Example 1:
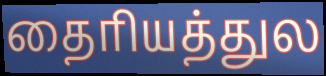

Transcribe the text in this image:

தைரியத்துல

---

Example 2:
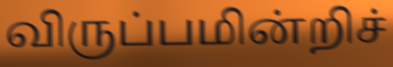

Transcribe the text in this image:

விருப்பமின்றிச்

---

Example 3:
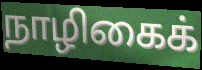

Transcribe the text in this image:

நாழிகைக்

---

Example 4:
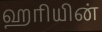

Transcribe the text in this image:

ஹரியின்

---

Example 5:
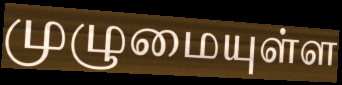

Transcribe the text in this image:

முழுமையுள்ள